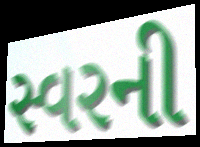
સ્વરની